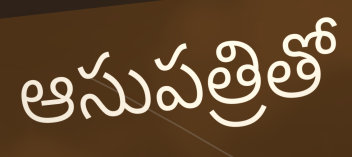
ఆసుపత్రితో